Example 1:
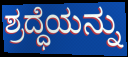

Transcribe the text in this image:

ಶ್ರದ್ಧೆಯನ್ನು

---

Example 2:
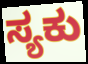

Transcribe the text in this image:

ಸ್ಯಕು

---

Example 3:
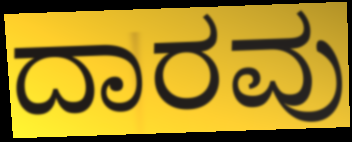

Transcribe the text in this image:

ದಾರವು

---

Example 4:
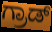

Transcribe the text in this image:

ಗ್ರಾಡ್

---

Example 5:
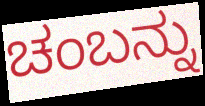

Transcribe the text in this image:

ಚಂಬನ್ನು